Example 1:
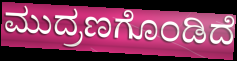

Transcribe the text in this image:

ಮುದ್ರಣಗೊಂಡಿದೆ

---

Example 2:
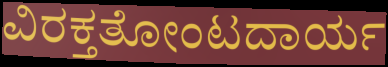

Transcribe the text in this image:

ವಿರಕ್ತತೋಂಟದಾರ್ಯ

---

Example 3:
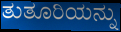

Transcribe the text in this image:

ತುತೂರಿಯನ್ನು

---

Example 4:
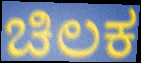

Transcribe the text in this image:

ಚಿಲಕ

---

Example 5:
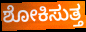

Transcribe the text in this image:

ಶೋಕಿಸುತ್ತ